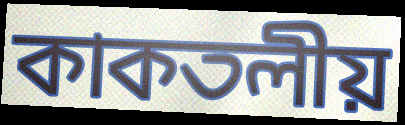
কাকতলীয়